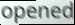
opened